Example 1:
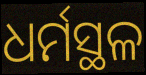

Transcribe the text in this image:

ଧର୍ମସ୍ଥଳ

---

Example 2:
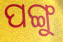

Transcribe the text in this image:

ପଙ୍ଗୁ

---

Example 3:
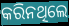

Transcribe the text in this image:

କରିନଥିଲେ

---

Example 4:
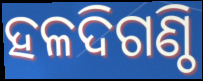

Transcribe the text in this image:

ହଳଦିଗଣ୍ଠି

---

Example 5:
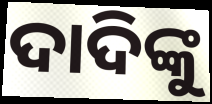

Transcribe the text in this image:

ଦାଦିଙ୍କୁ